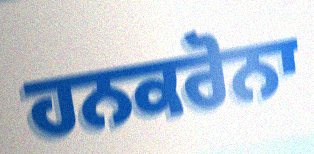
ਹਨਕਰੋਨਾ